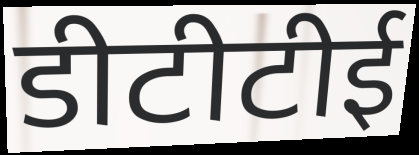
डीटीटीई